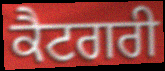
ਕੈਟਗਰੀ